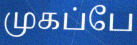
முகப்பே